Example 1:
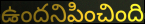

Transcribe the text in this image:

ఉందనిపించింది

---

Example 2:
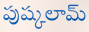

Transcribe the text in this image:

పుష్కలామ్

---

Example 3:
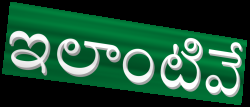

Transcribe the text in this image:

ఇలాంటివే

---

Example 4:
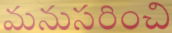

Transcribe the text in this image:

మనుసరించి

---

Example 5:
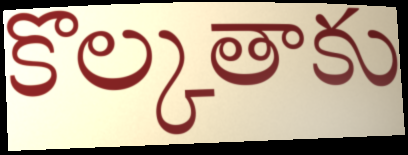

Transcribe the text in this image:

కొల్కతాకు